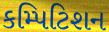
કમ્પિટિશન